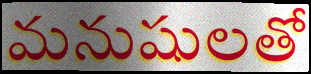
మనుషులతో